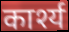
कार्श्य